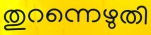
തുറന്നെഴുതി